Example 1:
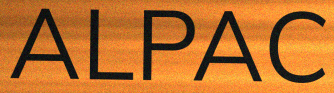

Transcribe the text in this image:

ALPAC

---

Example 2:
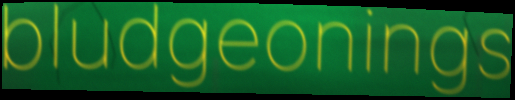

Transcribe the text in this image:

bludgeonings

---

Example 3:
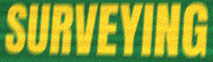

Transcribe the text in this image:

SURVEYING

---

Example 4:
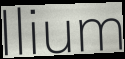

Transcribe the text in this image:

Ilium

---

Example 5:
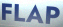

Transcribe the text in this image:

FLAP